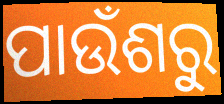
ପାଉଁଶରୁ